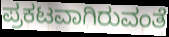
ಪ್ರಕಟವಾಗಿರುವಂತೆ